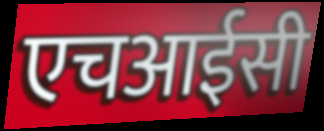
एचआईसी